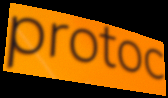
protoc